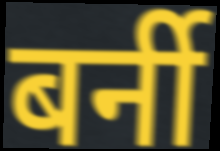
बर्नी